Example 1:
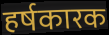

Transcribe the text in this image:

हर्षकारक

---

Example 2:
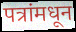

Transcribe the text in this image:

पत्रांमधून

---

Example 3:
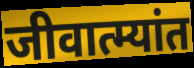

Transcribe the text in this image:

जीवात्म्यांत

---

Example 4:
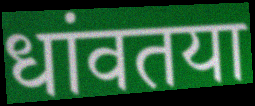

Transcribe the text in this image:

धांवतया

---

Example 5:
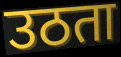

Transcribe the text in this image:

उठता